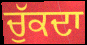
ਚੁੱਕਦਾ